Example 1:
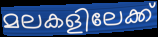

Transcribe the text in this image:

മലകളിലേക്ക്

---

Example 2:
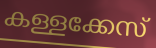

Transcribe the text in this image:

കള്ളക്കേസ്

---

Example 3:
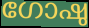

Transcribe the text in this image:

ഗോഷു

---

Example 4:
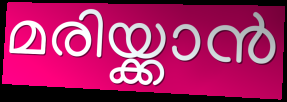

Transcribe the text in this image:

മരിയ്ക്കാൻ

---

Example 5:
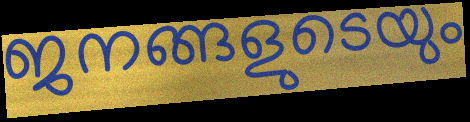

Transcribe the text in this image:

ജനങ്ങളുടെയും